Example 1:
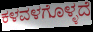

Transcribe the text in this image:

ಕಳವಳಗೊಳ್ಳದೆ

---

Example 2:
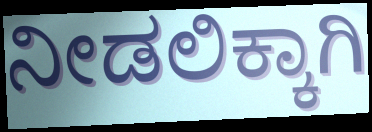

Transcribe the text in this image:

ನೀಡಲಿಕ್ಕಾಗಿ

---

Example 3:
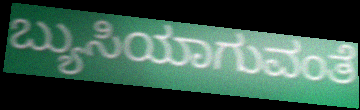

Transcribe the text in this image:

ಬ್ಯುಸಿಯಾಗುವಂತೆ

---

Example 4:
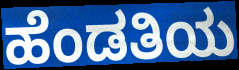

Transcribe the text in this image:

ಹೆಂಡತಿಯ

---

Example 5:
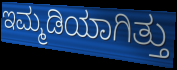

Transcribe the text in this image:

ಇಮ್ಮಡಿಯಾಗಿತ್ತು